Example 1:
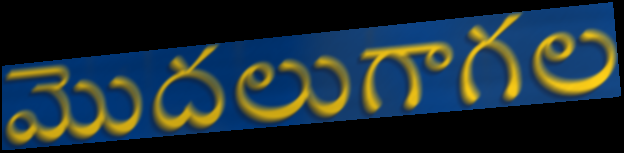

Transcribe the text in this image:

మొదలుగాగల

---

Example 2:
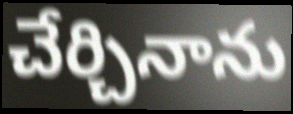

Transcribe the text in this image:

చేర్చినాను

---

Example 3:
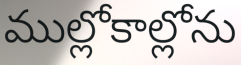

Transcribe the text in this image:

ముల్లోకాల్లోను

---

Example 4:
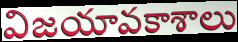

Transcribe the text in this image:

విజయావకాశాలు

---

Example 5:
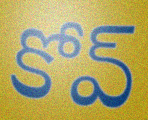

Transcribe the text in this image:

కోవ్